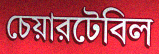
চেয়ারটেবিল